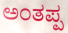
ಅಂತಪ್ಪ